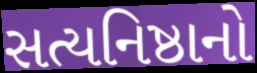
સત્યનિષ્ઠાનો